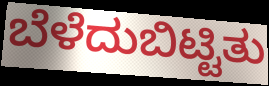
ಬೆಳೆದುಬಿಟ್ಟಿತು